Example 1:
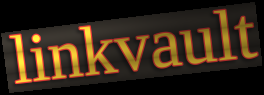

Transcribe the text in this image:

linkvault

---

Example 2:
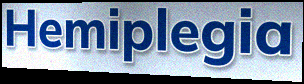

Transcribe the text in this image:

Hemiplegia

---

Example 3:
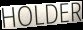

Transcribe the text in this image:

HOLDER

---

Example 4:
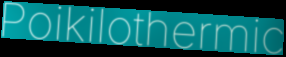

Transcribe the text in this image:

Poikilothermic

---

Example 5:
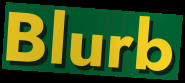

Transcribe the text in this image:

Blurb